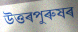
উত্তৰপুৰুষৰ